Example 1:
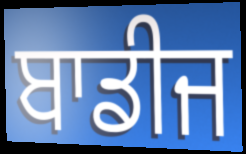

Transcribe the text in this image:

ਬਾਡੀਜ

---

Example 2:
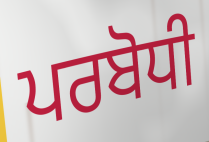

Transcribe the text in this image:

ਪਰਬੋਧੀ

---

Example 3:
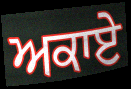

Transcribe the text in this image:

ਅਕਾਏ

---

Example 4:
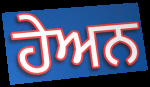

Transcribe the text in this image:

ਹੇਅਨ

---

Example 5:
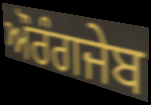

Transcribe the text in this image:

ਔਰੰਗਜੇਬ